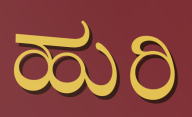
ಹುರಿ